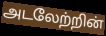
அடலேற்றின்